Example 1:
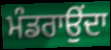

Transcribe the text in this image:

ਮੰਡਰਾਉਂਦਾ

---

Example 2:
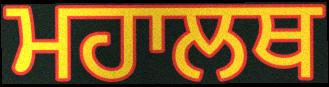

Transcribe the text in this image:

ਮਹਾਲਥ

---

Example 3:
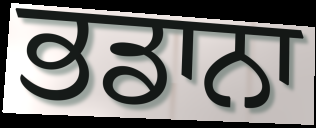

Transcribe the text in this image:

ਭਡਾਨਾ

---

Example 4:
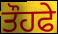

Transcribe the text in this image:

ਤੌਹਫੇ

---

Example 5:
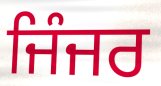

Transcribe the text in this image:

ਜਿੰਜਰ